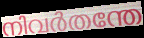
നിവർതന്തേ